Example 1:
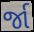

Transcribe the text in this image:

ર્જા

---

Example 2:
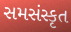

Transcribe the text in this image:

સમસંસ્કૃત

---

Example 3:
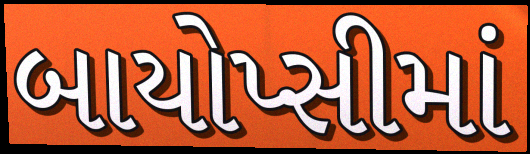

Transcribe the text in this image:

બાયોપ્સીમાં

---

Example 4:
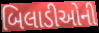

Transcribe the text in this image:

બિલાડીઓની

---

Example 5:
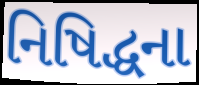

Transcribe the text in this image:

નિષિદ્ધના